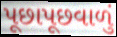
પૂછાપૂછવાળું